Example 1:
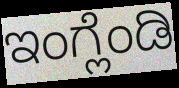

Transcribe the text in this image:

ಇಂಗ್ಲೆಂಡಿ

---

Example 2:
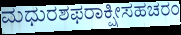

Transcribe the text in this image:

ಮಧುರಶಫರಾಕ್ಷೀಸಹಚರಂ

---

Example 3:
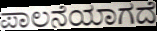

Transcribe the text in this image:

ಪಾಲನೆಯಾಗದೆ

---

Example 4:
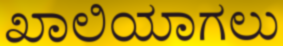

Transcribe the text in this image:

ಖಾಲಿಯಾಗಲು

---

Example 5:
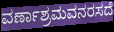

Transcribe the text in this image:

ವರ್ಣಾಶ್ರಮವನರಸದೆ